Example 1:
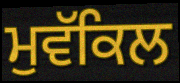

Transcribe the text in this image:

ਮੁਵੱਕਿਲ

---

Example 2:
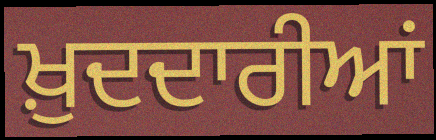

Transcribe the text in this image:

ਖ਼ੁਦਦਾਰੀਆਂ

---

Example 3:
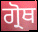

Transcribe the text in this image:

ਗ੍ਰੋਥ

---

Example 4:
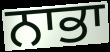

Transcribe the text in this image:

ਨਾਭਾ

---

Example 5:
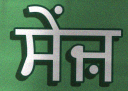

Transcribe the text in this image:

ਸੇਂਜ਼